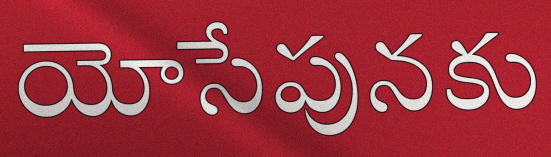
యోసేపునకు